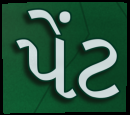
પેંટ